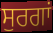
ਸੁਰਗਾਂ